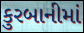
કુરબાનીમાં